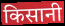
किसानी